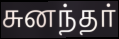
சுனந்தர்